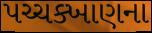
પચ્ચક્ખાણના